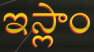
ఇస్లాం